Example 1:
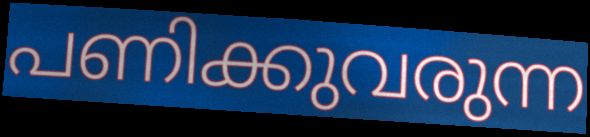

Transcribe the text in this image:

പണിക്കുവരുന്ന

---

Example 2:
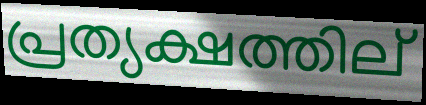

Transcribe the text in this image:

പ്രത്യക്ഷത്തില്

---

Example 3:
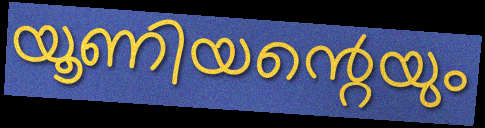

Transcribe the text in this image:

യൂണിയന്റെയും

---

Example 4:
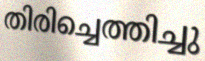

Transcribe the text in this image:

തിരിച്ചെത്തിച്ചു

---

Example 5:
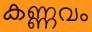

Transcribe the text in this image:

കണ്ണവം